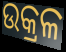
ଉକ୍ରଳ